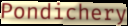
Pondichery